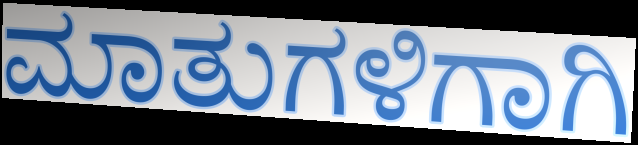
ಮಾತುಗಳಿಗಾಗಿ